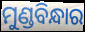
ମୁଣ୍ଡବିନ୍ଧାର